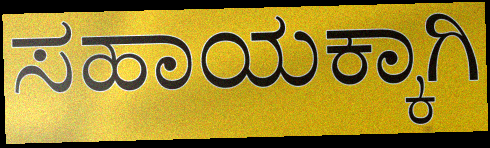
ಸಹಾಯಕ್ಕಾಗಿ